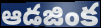
ఆడజింక